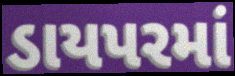
ડાયપરમાં